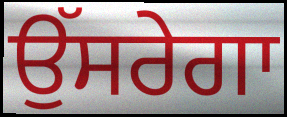
ਉੱਸਰੇਗਾ